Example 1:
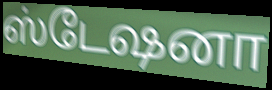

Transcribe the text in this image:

ஸ்டேஷனா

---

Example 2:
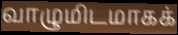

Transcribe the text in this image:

வாழுமிடமாகக்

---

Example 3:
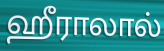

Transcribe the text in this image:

ஹீராலால்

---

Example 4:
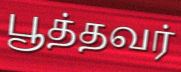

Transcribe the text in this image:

பூத்தவர்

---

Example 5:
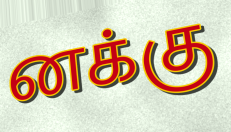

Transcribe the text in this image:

னக்கு